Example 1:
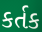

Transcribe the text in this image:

કર્તક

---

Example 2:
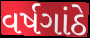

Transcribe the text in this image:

વર્ષગાંઠે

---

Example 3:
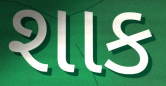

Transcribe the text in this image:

શાક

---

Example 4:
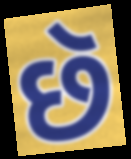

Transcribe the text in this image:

છૅ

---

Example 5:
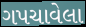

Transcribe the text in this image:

ગપચાવેલા